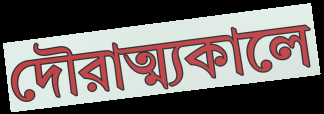
দৌরাত্ম্যকালে